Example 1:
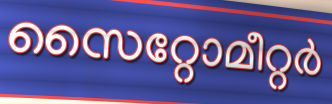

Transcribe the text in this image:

സൈറ്റോമീറ്റർ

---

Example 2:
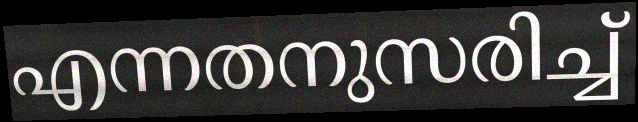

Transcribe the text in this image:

എന്നതനുസരിച്ച്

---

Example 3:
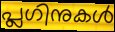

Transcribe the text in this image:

പ്ലഗിനുകൾ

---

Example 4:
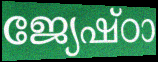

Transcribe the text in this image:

ജ്യേഷ്ഠാ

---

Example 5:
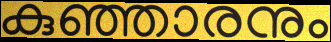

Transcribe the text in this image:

കുഞ്ഞാരനും